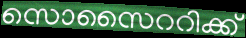
സൊസൈററിക്ക്